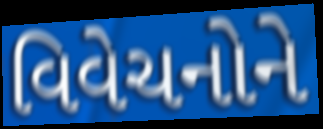
વિવેચનોને